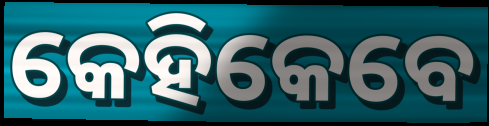
କେହିକେବେ